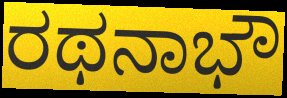
ರಥನಾಭೌ